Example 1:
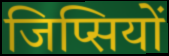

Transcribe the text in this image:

जिप्सियों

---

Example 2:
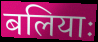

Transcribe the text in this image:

बलियाः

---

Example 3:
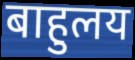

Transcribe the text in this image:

बाहुलय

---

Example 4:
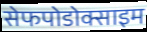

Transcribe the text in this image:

सेफपोडोक्साइम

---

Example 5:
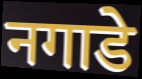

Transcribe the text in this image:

नगाडे